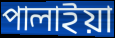
পালাইয়া